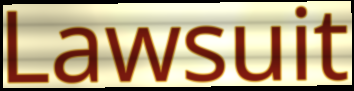
Lawsuit